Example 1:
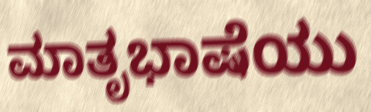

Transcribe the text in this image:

ಮಾತೃಭಾಷೆಯು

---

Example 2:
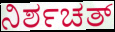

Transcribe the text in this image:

ನಿರ್ಶಚತ್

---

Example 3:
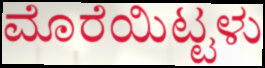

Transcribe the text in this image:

ಮೊರೆಯಿಟ್ಟಳು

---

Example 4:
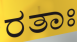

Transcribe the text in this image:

ರತಾಃ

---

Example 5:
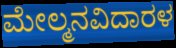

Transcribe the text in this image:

ಮೇಲ್ಮನವಿದಾರಳ